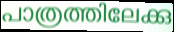
പാത്രത്തിലേക്കു